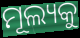
ମୂଲ୍ୟକୁ